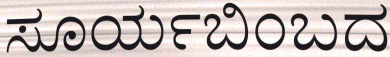
ಸೂರ್ಯಬಿಂಬದ